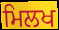
ਮਿਲਖ